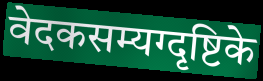
वेदकसम्यग्दृष्टिके